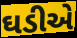
ઘડીએ